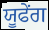
ਯੂਫੇਂਗ